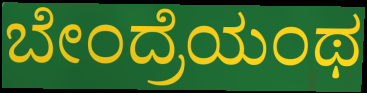
ಬೇಂದ್ರೆಯಂಥ